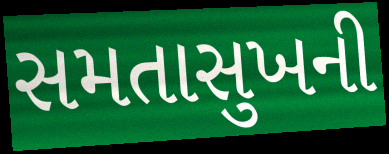
સમતાસુખની